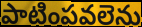
పాటింపవలెను